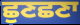
ਛੁਣਛਣਾ